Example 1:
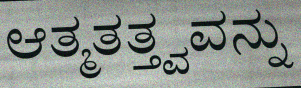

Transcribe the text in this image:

ಆತ್ಮತತ್ತ್ವವನ್ನು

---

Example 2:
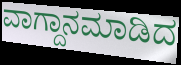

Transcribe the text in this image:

ವಾಗ್ದಾನಮಾಡಿದ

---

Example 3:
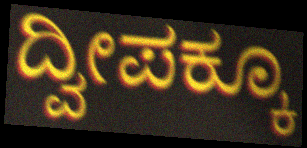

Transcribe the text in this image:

ದ್ವೀಪಕ್ಕೂ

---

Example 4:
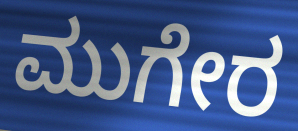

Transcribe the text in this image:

ಮುಗೇರ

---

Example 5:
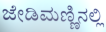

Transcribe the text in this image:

ಜೇಡಿಮಣ್ಣಿನಲ್ಲಿ